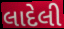
લાદેલી